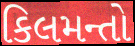
કિલમન્તો